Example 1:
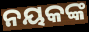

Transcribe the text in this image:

ନୟକଙ୍କ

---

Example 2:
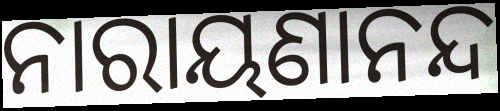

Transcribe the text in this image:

ନାରାୟଣାନନ୍ଦ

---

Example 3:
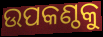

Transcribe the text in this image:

ଉପକଣ୍ଠକୁ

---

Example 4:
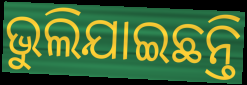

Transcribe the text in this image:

ଭୁଲିଯାଇଛନ୍ତି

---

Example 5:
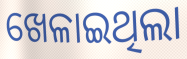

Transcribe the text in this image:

ଖେଳାଇଥିଲା